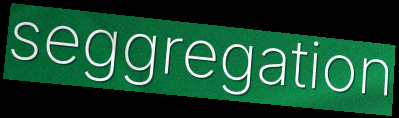
seggregation